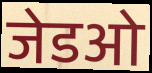
जेडओ